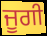
ਜੂਗੀ